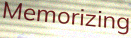
Memorizing